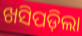
ଖସିପଡ଼ିଲା